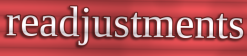
readjustments